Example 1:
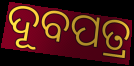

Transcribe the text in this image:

ଦୂବପତ୍ର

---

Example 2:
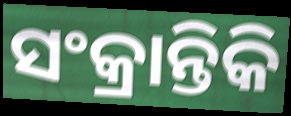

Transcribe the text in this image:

ସଂକ୍ରାନ୍ତିକି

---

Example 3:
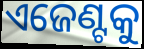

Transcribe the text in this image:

ଏଜେଣ୍ଟକୁ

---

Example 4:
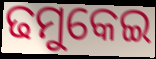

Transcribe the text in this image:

ଢମୁକେଇ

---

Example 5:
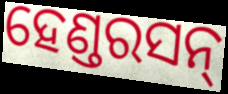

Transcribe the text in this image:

ହେଣ୍ଡରସନ୍